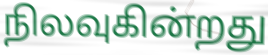
நிலவுகின்றது